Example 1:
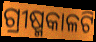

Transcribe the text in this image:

ଗ୍ରୀଷ୍ମକାଳଟି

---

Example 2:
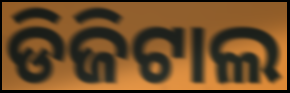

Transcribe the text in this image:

ଡିଜିଟାଲ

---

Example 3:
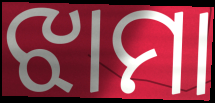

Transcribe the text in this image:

ଝାମା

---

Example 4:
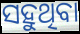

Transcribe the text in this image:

ସହୁଥିବା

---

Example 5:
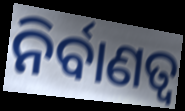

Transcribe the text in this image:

ନିର୍ବାଣତ୍ୱ